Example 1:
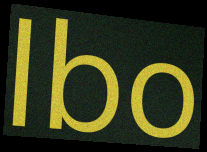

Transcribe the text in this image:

Ibo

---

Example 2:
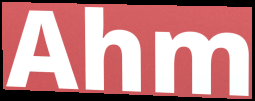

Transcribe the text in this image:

Ahm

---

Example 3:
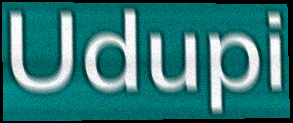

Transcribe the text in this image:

Udupi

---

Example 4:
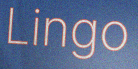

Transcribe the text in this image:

Lingo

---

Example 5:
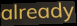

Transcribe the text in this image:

already